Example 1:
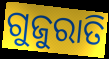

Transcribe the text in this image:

ଗୁଜୁରାତି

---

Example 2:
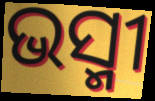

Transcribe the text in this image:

ଭସ୍ମୀ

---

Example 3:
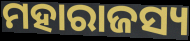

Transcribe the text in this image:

ମହାରାଜସ୍ୟ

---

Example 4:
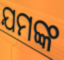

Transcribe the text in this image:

ଯମଙ୍କ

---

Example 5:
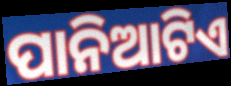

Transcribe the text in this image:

ପାନିଆଟିଏ